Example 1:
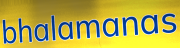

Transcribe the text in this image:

bhalamanas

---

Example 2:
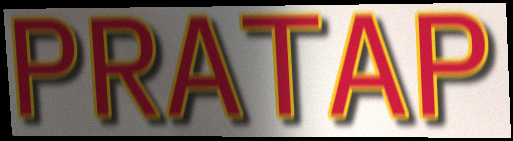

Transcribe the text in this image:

PRATAP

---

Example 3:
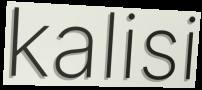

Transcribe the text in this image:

kalisi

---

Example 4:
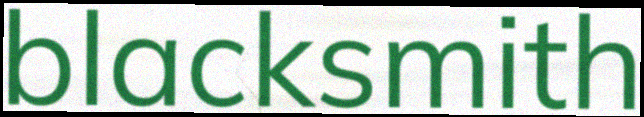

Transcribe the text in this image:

blacksmith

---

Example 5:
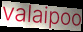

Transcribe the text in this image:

valaipoo